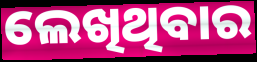
ଲେଖିଥିବାର